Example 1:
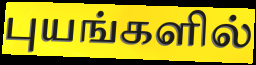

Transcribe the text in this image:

புயங்களில்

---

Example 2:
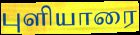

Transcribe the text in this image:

புளியாரை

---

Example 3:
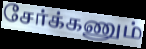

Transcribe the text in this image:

சேர்க்கணும்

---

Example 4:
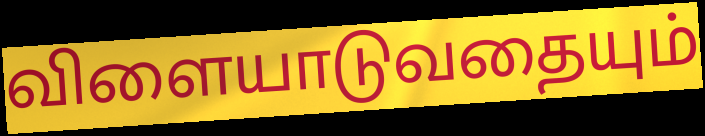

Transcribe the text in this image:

விளையாடுவதையும்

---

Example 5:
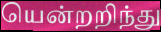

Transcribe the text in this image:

யென்றறிந்து